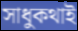
সাধুকথাই